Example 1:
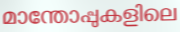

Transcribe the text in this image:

മാന്തോപ്പുകളിലെ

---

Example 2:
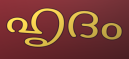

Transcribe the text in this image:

ഹൃദം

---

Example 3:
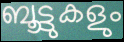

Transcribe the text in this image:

ബൂട്ടുകളും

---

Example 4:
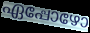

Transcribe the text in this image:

ഏപ്പോഴോ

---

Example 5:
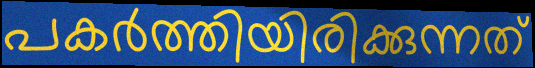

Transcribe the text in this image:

പകർത്തിയിരിക്കുന്നത്